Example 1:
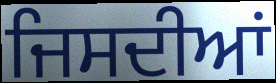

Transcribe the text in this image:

ਜਿਸਦੀਆਂ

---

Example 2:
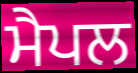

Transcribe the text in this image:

ਮੈਪਲ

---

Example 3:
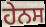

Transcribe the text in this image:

ਹੇਨਸ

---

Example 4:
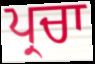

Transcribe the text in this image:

ਪ੍ਰਚਾ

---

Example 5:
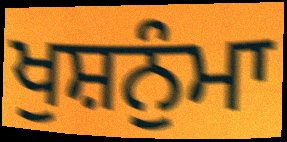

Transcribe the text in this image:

ਖੁਸ਼ਨੁੰਮਾ